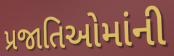
પ્રજાતિઓમાંની